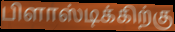
பிளாஸ்டிக்கிற்கு